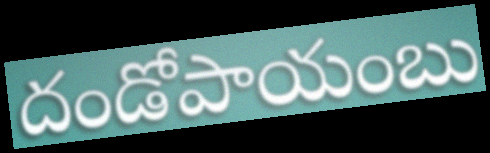
దండోపాయంబు